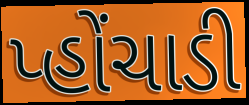
પ્હોંચાડી